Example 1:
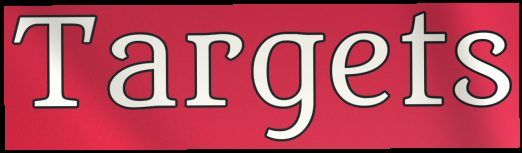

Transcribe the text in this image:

Targets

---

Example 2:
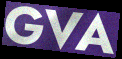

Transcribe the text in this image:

GVA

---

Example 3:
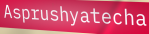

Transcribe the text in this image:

Asprushyatecha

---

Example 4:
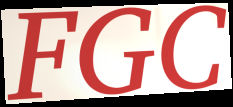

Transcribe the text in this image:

FGC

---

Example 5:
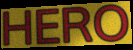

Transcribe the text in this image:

HERO